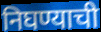
निघण्याची